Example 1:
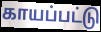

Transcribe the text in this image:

காயப்பட்டு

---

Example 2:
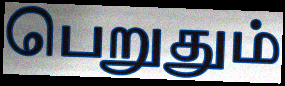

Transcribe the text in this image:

பெறுதும்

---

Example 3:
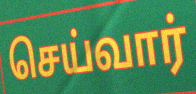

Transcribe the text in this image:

செய்வார்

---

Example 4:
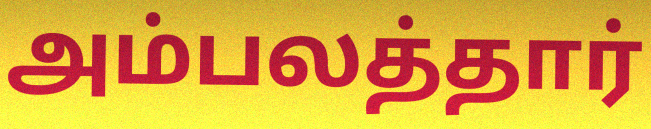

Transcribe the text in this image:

அம்பலத்தார்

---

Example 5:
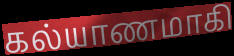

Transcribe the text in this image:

கல்யாணமாகி